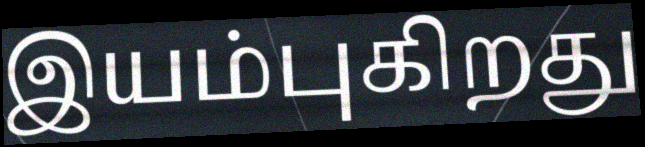
இயம்புகிறது